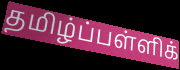
தமிழ்ப்பள்ளிக்